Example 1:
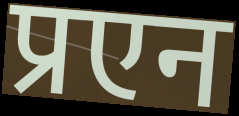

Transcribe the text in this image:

प्रएन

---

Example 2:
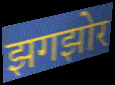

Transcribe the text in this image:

झगझोर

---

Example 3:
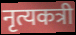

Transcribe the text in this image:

नृत्यकत्री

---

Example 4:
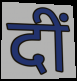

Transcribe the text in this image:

दीं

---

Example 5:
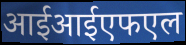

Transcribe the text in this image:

आईआईएफएल